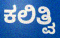
ಕಲಿತ್ವಿ